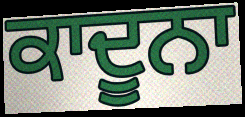
ਕਾਦੂਨਾ